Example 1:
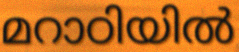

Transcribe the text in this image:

മറാഠിയിൽ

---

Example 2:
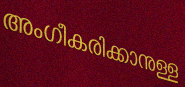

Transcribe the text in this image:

അംഗീകരിക്കാനുള്ള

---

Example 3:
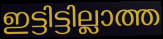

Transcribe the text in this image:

ഇട്ടിട്ടില്ലാത്ത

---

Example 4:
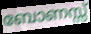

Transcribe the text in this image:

ബോണസ്സ്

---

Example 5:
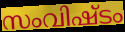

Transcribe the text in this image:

സംവിഷ്ടം